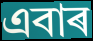
এবাৰ